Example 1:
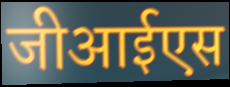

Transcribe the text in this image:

जीआईएस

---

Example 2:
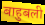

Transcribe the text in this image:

बाहुबली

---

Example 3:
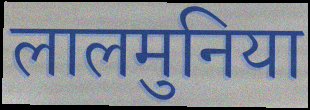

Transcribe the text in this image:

लालमुनिया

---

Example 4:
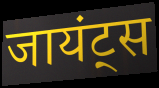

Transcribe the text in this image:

जायंट्स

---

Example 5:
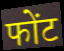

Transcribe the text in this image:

फोंट